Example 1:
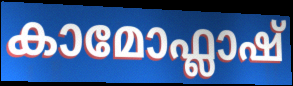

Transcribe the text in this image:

കാമോഫ്ലാഷ്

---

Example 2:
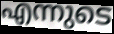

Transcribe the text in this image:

എന്നുടെ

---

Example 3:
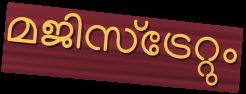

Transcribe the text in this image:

മജിസ്ട്രേറ്റും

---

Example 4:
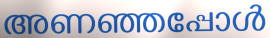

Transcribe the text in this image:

അണഞ്ഞപ്പോൾ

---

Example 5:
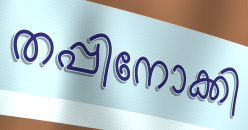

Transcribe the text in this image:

തപ്പിനോക്കി